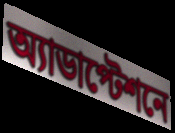
অ্যাডাপ্টেশনে